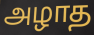
அழாத